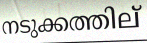
നടുക്കത്തില്